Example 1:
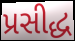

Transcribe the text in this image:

પ્રસીદ્ધ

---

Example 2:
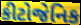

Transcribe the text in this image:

કીટોજેનિક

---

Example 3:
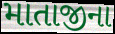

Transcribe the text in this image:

માતાજીના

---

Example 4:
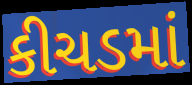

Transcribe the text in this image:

કીચડમાં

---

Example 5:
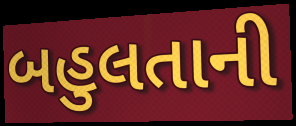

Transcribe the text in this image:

બહુલતાની